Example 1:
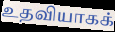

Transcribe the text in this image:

உதவியாகக்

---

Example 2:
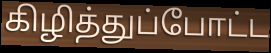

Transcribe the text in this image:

கிழித்துப்போட்ட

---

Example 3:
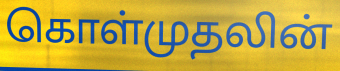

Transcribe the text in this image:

கொள்முதலின்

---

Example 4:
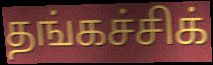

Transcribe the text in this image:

தங்கச்சிக்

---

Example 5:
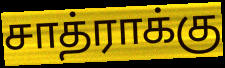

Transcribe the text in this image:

சாத்ராக்கு